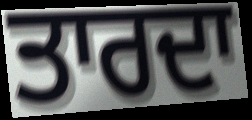
ਤਾਰਦਾ